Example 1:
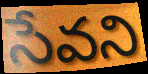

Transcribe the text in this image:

సేవని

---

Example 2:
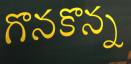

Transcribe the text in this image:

గొనకొన్న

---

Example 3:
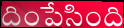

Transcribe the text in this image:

దింపేసింది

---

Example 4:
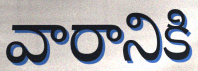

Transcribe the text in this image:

వారానికి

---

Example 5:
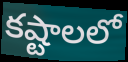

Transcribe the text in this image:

కష్టాలలో